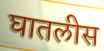
घातलीस